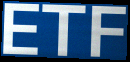
ETF